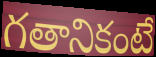
గతానికంటే